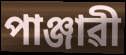
পাঞ্জাৱী